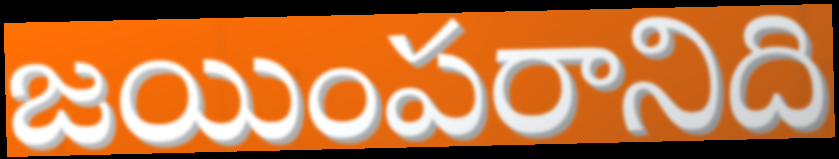
జయింపరానిది